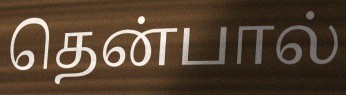
தென்பால்